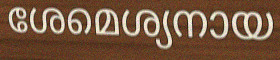
ശേമെശ്യനായ